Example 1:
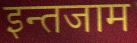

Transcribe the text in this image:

इन्तजाम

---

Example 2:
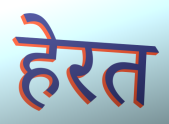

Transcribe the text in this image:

हेरत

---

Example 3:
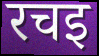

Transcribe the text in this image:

रचइ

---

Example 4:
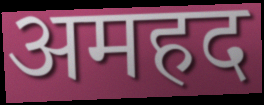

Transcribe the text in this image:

अमहद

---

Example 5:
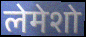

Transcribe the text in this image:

लेमेशो